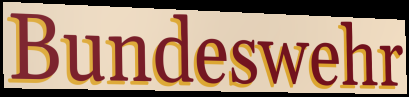
Bundeswehr